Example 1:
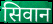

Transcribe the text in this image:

सिवान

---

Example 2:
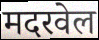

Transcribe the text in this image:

मदरवेल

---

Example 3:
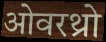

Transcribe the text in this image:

ओवरथ्रो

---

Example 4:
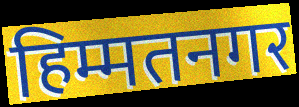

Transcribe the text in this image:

हिम्मतनगर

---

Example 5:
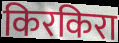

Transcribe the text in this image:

किरकिरा